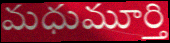
మధుమూర్తి